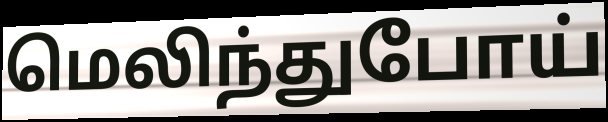
மெலிந்துபோய்